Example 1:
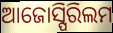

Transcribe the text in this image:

ଆଜୋସ୍ପିରିଲମ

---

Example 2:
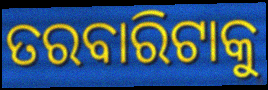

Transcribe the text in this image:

ତରବାରିଟାକୁ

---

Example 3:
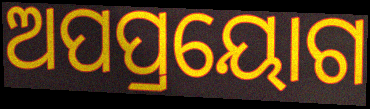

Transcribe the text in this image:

ଅପପ୍ରୟୋଗ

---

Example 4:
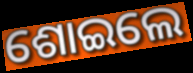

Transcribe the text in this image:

ଶୋଇଲେ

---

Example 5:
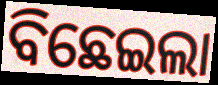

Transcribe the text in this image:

ବିଛେଇଲା